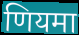
णियमा